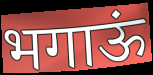
भगाऊं